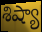
శిష్యా